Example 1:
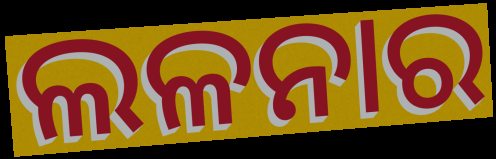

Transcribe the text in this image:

ଲଳନାର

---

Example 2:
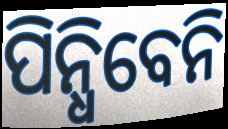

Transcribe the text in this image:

ପିନ୍ଧିବେନି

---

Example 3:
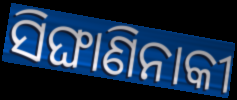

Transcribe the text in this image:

ସିଙ୍ଘାଣିନାକୀ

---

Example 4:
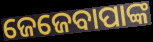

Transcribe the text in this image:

ଜେଜେବାପାଙ୍କ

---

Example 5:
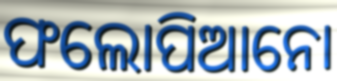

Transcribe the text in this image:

ଫଲୋପିଆନୋ